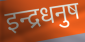
इन्‍द्रधनुष